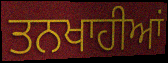
ਤਨਖਾਹੀਆਂ